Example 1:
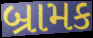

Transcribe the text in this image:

બ્રામક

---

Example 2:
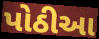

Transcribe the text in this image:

પોઠીઆ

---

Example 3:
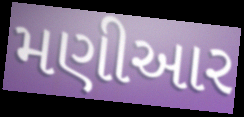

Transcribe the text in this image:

મણીઆર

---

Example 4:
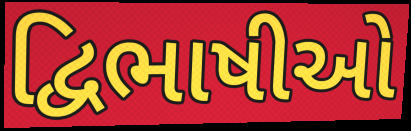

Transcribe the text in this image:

દ્વિભાષીઓ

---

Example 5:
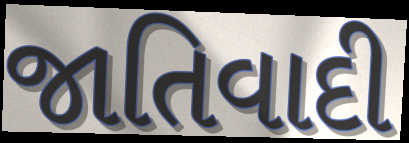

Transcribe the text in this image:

જાતિવાદી